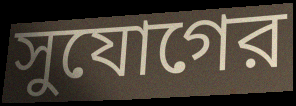
সুযোগের